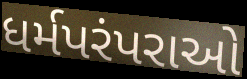
ધર્મપરંપરાઓ